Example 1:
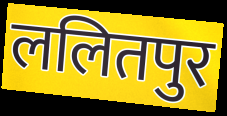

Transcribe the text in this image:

ललितपुर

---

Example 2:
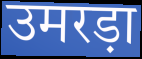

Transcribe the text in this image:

उमरड़ा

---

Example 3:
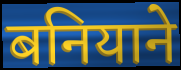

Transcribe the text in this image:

बनियाने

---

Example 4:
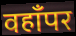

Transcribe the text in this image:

वहाँपर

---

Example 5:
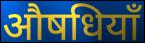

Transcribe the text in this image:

औषधियाँ